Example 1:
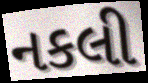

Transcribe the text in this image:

નકલી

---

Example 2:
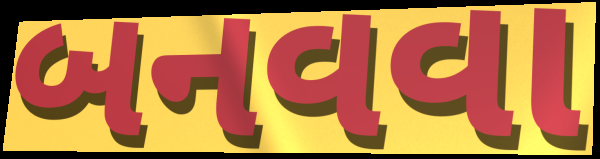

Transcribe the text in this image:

બનવવા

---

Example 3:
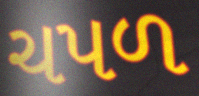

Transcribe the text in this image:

ચપળ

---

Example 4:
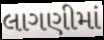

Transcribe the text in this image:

લાગણીમાં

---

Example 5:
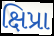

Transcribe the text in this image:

ક્ષિપ્રા